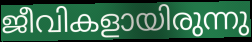
ജീവികളായിരുന്നു